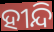
ହୀନ୍ଦି